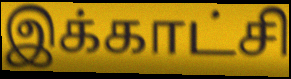
இக்காட்சி